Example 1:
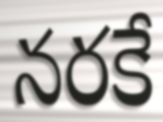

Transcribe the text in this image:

నరకే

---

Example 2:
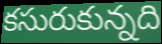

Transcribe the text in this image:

కసురుకున్నది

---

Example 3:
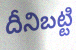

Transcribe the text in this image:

దీనిబట్టి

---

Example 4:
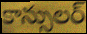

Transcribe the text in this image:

కాన్సులర్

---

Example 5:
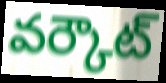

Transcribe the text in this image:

వర్కౌట్